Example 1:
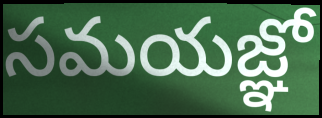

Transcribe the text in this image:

సమయజ్ఞో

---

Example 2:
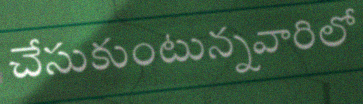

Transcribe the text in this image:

చేసుకుంటున్నవారిలో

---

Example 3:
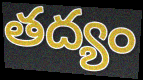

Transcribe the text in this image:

తద్యం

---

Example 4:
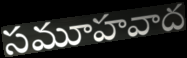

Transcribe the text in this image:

సమూహవాద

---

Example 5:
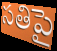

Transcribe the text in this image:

సతిపై